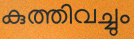
കുത്തിവച്ചും